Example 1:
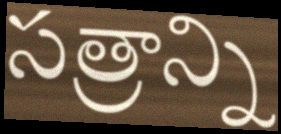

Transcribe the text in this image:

సత్రాన్ని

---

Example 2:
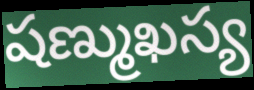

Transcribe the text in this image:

షణ్ముఖస్య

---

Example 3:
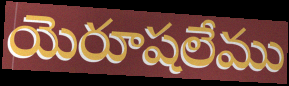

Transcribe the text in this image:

యెరూషలేము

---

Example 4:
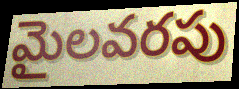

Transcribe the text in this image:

మైలవరపు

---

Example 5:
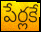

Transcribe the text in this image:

పేర్లకే